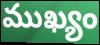
ముఖ్యం